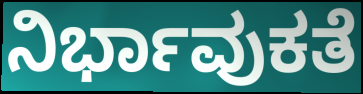
ನಿರ್ಭಾವುಕತೆ